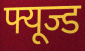
फ्यूज्ड